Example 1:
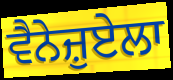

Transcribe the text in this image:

ਵੈਨੇਜ਼ੁਏਲਾ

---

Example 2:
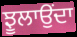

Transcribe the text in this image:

ਝੂਲਾਉਂਦਾ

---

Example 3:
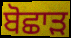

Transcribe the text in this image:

ਬੋਛਾੜ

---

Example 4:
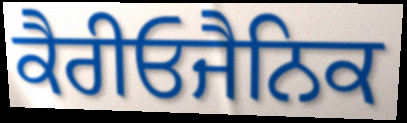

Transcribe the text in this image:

ਕੈਰੀਓਜੈਨਿਕ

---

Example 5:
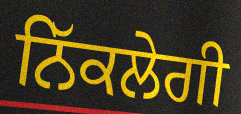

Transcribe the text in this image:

ਨਿੱਕਲੇਗੀ